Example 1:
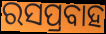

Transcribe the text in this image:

ରସପ୍ରବାହ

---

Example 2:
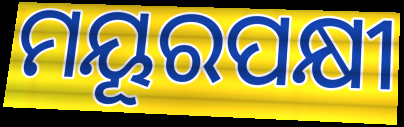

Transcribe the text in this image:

ମୟୂରପକ୍ଷୀ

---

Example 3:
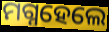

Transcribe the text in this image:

ମଗ୍ନହେଲେ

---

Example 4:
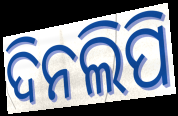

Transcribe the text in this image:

ଦିନଲିପି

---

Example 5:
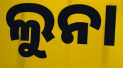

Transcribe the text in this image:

ଲୁନା